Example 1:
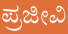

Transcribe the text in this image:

ಪ್ರಜೀವಿ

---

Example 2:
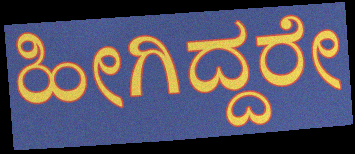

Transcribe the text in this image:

ಹೀಗಿದ್ದರೇ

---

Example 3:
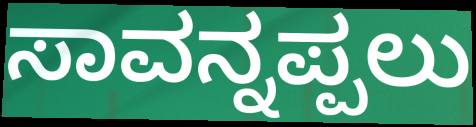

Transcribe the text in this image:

ಸಾವನ್ನಪ್ಪಲು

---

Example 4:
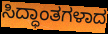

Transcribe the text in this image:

ಸಿದ್ಧಾಂತಗಳಾದ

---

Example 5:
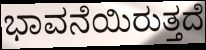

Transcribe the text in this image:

ಭಾವನೆಯಿರುತ್ತದೆ